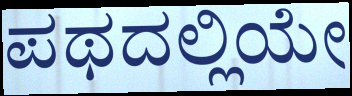
ಪಥದಲ್ಲಿಯೇ